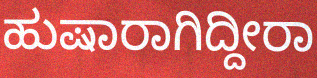
ಹುಷಾರಾಗಿದ್ದೀರಾ